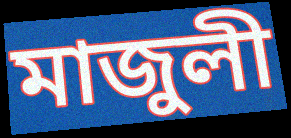
মাজুলী